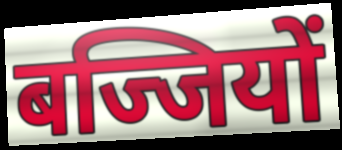
बज्जियों